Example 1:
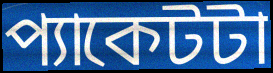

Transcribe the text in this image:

প্যাকেটটা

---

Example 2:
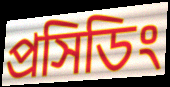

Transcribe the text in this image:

প্রসিডিং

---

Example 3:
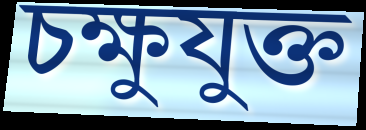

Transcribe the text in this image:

চক্ষুযুক্ত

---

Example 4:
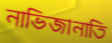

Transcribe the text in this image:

নাভিজানাতি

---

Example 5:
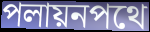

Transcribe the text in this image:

পলায়নপথে